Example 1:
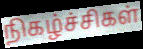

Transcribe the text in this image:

நிகழ்ச்சிகள்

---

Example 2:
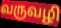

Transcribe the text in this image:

வருவழி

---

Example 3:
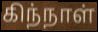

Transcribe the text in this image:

கிந்நாள்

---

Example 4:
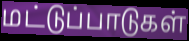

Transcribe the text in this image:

மட்டுப்பாடுகள்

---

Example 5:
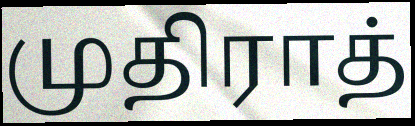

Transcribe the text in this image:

முதிராத்